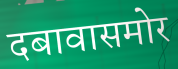
दबावासमोर